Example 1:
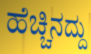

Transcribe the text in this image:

ಹೆಚ್ಚಿನದ್ದು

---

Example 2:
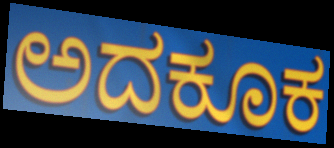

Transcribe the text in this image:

ಅದಕೂಕ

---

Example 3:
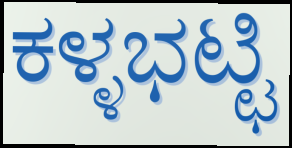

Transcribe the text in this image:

ಕಳ್ಳಭಟ್ಟಿ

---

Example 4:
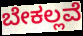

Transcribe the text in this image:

ಬೇಕಲ್ಲವೆ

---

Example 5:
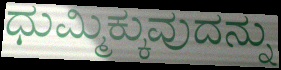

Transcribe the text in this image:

ಧುಮ್ಮಿಕ್ಕುವುದನ್ನು